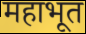
महाभूत